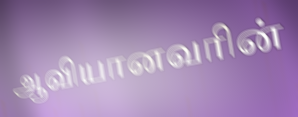
ஆவியானவரின்